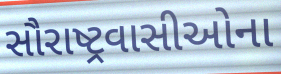
સૌરાષ્ટ્રવાસીઓના